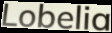
Lobelia